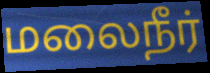
மலைநீர்